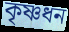
কৃষ্ণধন